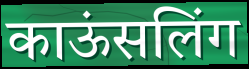
काऊंसलिंग